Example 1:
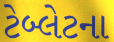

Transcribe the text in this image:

ટેબ્લેટના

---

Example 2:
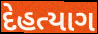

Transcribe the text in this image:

દેહત્યાગ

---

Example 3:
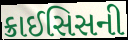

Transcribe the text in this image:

ક્રાઈસિસની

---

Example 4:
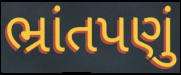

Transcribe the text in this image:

ભ્રાંતપણું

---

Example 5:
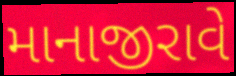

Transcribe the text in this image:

માનાજીરાવે